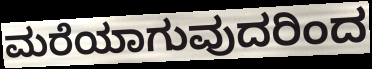
ಮರೆಯಾಗುವುದರಿಂದ